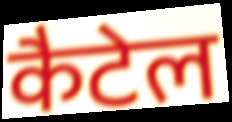
कैटेल